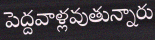
పెద్దవాళ్లవుతున్నారు